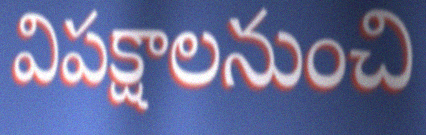
విపక్షాలనుంచి